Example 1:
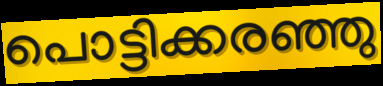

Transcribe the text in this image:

പൊട്ടിക്കരഞ്ഞു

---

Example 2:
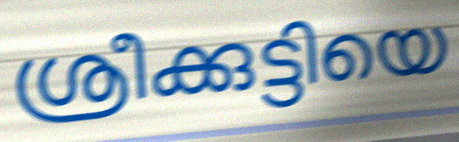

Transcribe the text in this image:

ശ്രീക്കുട്ടിയെ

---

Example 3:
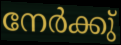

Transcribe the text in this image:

നേർക്കു്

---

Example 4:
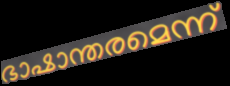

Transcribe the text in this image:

ഭാഷാന്തരമെന്ന്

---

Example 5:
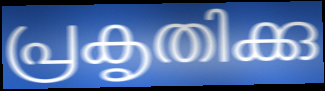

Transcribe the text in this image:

പ്രകൃതിക്കു